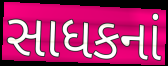
સાધકનાં